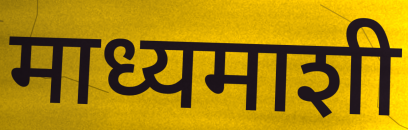
माध्यमाशी